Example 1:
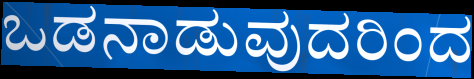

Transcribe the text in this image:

ಒಡನಾಡುವುದರಿಂದ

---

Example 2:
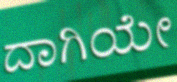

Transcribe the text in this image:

ದಾಗಿಯೇ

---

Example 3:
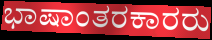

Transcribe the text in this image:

ಭಾಷಾಂತರಕಾರರು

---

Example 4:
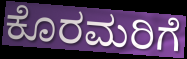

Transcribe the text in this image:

ಕೊರಮರಿಗೆ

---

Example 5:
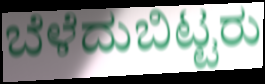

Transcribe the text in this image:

ಬೆಳೆದುಬಿಟ್ಟರು